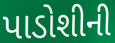
પાડોશીની